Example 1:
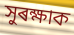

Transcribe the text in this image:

সুৰক্ষাক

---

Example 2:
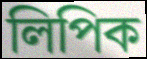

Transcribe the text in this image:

লিপিক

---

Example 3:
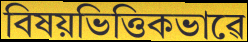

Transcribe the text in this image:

বিষয়ভিত্তিকভাৱে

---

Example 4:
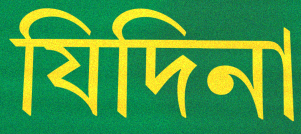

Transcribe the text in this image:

যিদিনা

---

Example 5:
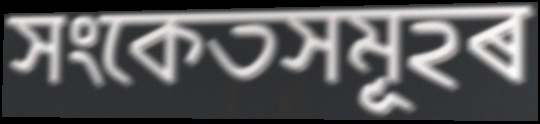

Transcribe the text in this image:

সংকেতসমূহৰ